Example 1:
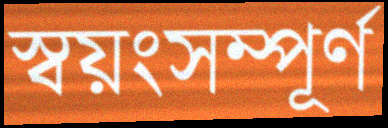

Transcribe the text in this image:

স্বয়ংসম্পূর্ণ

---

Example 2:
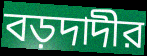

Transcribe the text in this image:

বড়দাদীর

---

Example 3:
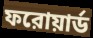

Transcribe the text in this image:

ফরোয়ার্ড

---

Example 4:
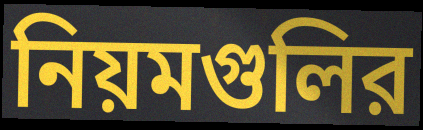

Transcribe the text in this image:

নিয়মগুলির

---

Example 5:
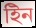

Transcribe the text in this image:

ইিন